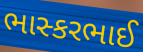
ભાસ્કરભાઈ